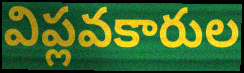
విప్లవకారుల